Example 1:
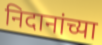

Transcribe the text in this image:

निदानांच्या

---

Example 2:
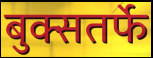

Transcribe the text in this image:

बुक्सतर्फे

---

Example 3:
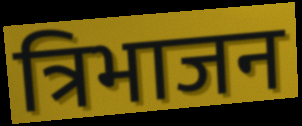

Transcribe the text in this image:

त्रिभाजन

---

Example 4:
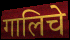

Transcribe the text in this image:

गालिचे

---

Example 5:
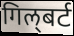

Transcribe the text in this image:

गिल्बर्ट